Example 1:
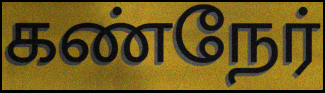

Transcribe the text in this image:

கண்நேர்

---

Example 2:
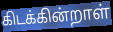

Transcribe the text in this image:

கிடக்கின்றாள்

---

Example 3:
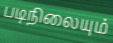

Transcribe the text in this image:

படிநிலையும்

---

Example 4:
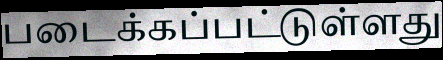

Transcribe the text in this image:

படைக்கப்பட்டுள்ளது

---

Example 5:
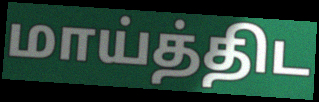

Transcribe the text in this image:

மாய்த்திட